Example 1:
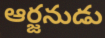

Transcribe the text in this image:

ఆర్జనుడు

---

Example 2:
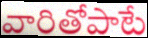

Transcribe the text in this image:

వారితోపాటే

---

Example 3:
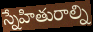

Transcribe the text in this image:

స్నేహితురాల్ని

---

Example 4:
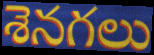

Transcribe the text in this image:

శెనగలు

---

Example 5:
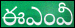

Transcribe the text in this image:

ఈఎంవీ